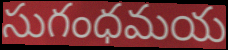
సుగంధమయ